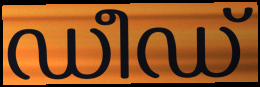
ഡീഡ്